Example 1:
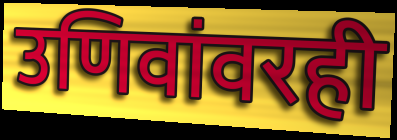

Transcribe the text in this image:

उणिवांवरही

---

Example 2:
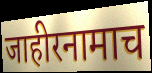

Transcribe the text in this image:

जाहीरनामाच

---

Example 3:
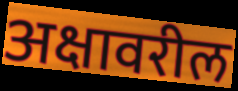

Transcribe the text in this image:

अक्षावरील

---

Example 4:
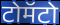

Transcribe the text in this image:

टोमॅटो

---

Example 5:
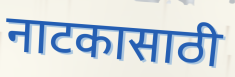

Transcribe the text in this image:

नाटकासाठी